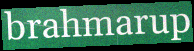
brahmarup